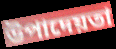
উপাদেয়তা